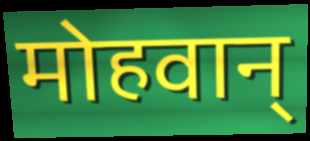
मोहवान्